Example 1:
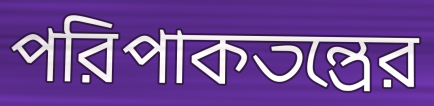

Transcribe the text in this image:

পরিপাকতন্ত্রের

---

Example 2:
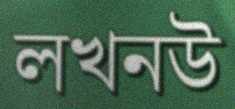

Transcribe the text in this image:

লখনউ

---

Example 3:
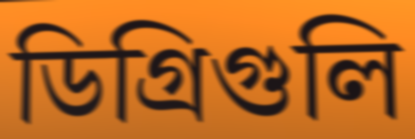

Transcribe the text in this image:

ডিগ্রিগুলি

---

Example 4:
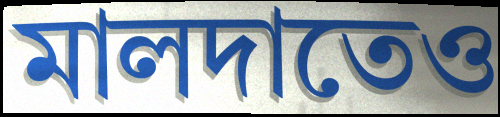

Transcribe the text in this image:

মালদাতেও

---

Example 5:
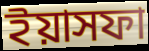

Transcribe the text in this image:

ইয়াসফা